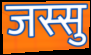
जस्सु